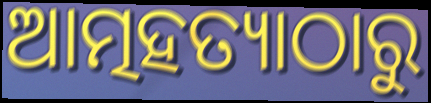
ଆତ୍ମହତ୍ୟାଠାରୁ